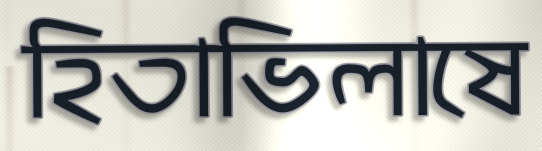
হিতাভিলাষে